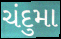
ચંદુમા